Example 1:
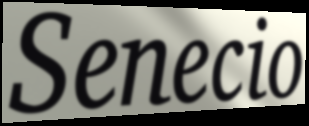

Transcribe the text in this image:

Senecio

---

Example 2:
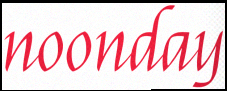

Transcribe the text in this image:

noonday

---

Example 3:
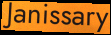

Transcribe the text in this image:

Janissary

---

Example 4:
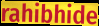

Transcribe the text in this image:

rahibhide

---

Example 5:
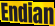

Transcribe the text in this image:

Endian